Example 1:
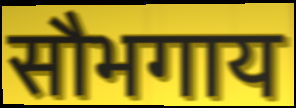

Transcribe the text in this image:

सौभगाय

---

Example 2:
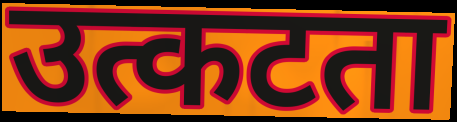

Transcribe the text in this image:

उत्कटता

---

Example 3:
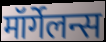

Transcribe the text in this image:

मॉर्गेलन्स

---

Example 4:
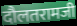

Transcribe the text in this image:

दौलतरामजी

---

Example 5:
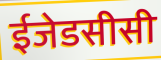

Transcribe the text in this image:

ईजेडसीसी